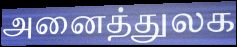
அனைத்துலக